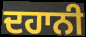
ਦਹਾਨੀ